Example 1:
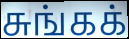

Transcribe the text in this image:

சுங்கக்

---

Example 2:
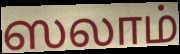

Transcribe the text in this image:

ஸலாம்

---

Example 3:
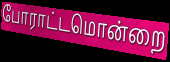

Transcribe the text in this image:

போராட்டமொன்றை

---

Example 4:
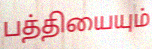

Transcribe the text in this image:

பத்தியையும்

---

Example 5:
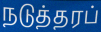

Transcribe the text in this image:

நடுத்தரப்